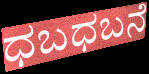
ಧಬಧಬನೆ